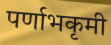
पर्णाभकृमी